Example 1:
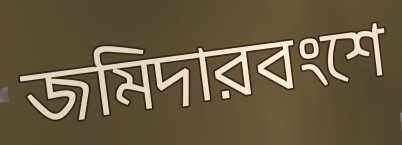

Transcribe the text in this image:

জমিদারবংশে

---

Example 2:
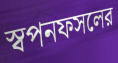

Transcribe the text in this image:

স্বপনফসলের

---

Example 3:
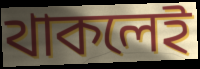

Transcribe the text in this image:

থাকলেই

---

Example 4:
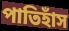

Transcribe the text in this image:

পাতিহাঁস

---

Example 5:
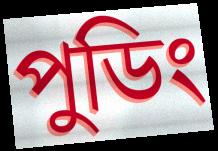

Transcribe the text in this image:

পুডিং